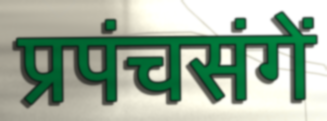
प्रपंचसंगें